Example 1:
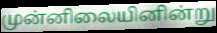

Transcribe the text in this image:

முன்னிலையினின்று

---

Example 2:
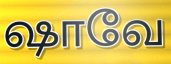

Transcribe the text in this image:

ஷாவே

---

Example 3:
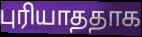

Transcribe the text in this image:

புரியாததாக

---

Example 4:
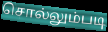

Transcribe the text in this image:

சொல்லும்படி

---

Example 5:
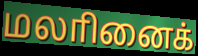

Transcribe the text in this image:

மலரினைக்